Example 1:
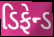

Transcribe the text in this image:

ડિફેન્ડ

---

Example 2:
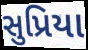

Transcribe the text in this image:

સુપ્રિયા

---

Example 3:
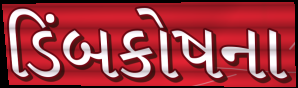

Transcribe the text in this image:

ડિંબકોષના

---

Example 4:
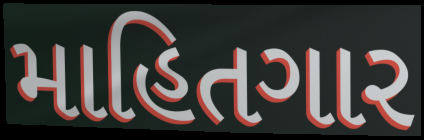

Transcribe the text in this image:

માહિતગાર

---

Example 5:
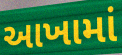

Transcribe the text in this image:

આખામાં